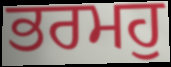
ਭਰਮਹੁ